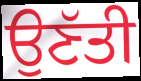
ਉਣੱਤੀ